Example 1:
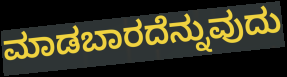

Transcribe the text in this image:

ಮಾಡಬಾರದೆನ್ನುವುದು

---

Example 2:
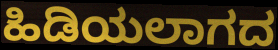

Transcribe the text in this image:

ಹಿಡಿಯಲಾಗದ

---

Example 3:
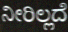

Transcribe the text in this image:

ನೀರಿಲ್ಲದೆ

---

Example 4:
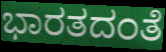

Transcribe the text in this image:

ಭಾರತದಂತೆ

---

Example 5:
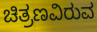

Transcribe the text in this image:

ಚಿತ್ರಣವಿರುವ